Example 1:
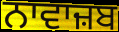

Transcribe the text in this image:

ਨਾਵਾਜ਼ਬ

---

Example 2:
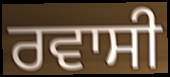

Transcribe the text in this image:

ਰਵਾਸੀ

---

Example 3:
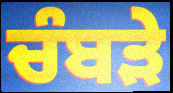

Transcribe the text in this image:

ਚੰਬੜੇ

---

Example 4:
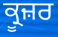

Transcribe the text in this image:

ਕ੍ਰੂਜ਼ਰ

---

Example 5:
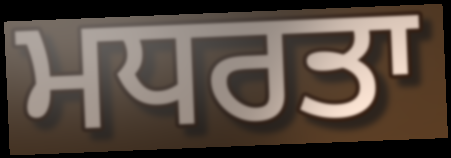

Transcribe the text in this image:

ਮਧਰਤਾ